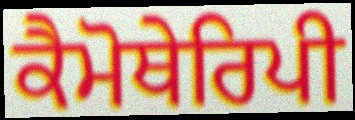
ਕੈਮੋਥੇਰਿਪੀ